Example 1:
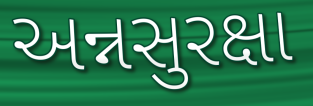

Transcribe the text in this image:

અન્નસુરક્ષા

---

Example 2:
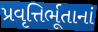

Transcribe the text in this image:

પ્રવૃત્તિર્ભૂતાનાં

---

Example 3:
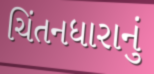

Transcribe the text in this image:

ચિંતનધારાનું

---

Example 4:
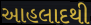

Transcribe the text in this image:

આહલાદથી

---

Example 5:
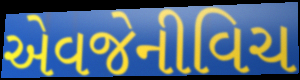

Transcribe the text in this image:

એવજેનીવિચ